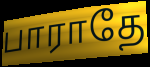
பாராதே